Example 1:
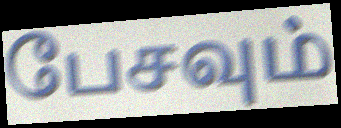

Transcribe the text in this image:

பேசவும்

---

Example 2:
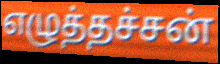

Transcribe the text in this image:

எழுத்தச்சன்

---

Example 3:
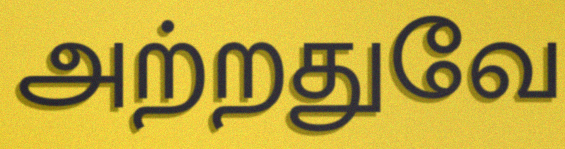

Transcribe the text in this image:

அற்றதுவே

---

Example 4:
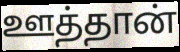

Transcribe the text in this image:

ஊத்தான்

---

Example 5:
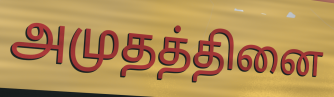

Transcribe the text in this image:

அமுதத்தினை